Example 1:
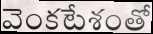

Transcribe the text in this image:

వెంకటేశంతో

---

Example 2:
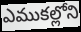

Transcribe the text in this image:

ఎముకల్లోని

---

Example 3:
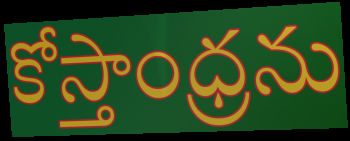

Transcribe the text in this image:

కోస్తాంధ్రను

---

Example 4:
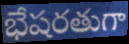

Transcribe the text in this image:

భేషరతుగా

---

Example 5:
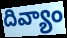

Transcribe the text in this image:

దివ్యాం